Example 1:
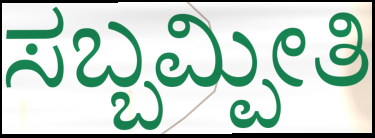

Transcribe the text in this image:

ಸಬ್ಬಮ್ಪೀತಿ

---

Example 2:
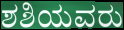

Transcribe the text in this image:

ಶಶಿಯವರು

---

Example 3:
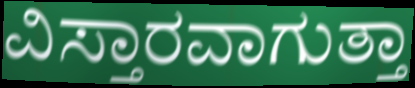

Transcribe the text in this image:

ವಿಸ್ತಾರವಾಗುತ್ತಾ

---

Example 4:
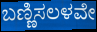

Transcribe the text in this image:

ಬಣ್ಣಿಸಲಳವೇ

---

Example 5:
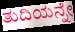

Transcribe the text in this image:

ತುದಿಯನ್ನೇ